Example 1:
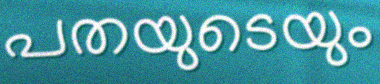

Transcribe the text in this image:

പതയുടെയും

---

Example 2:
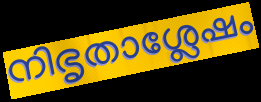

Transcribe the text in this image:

നിഭൃതാശ്ലേഷം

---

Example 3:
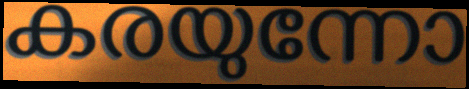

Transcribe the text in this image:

കരയുന്നോ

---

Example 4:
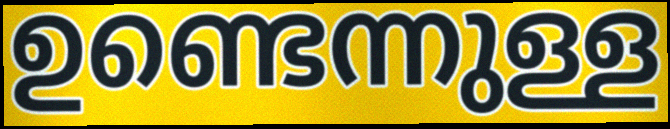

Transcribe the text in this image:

ഉണ്ടെന്നുള്ള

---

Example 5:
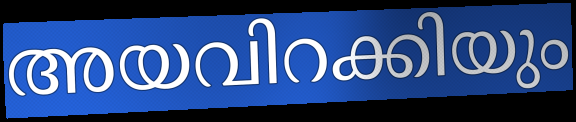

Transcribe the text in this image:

അയവിറക്കിയും